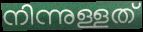
നിന്നുള്ളത്